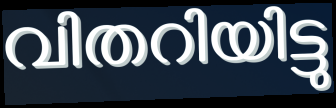
വിതറിയിട്ടു